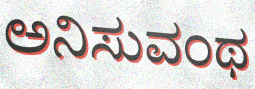
ಅನಿಸುವಂಥ